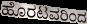
ಹೊರಟವರಿಂದ